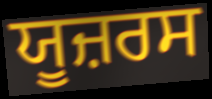
ਯੂਜ਼ਰਸ